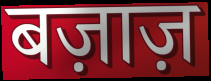
बज़ाज़